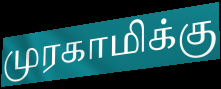
முரகாமிக்கு